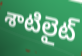
శాటిలైట్